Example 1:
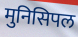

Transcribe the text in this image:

मुनिसिपल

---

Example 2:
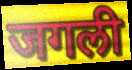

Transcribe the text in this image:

जगली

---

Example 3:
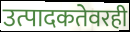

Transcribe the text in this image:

उत्पादकतेवरही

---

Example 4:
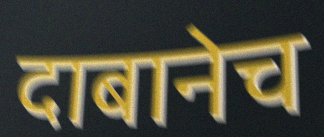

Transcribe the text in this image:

दाबानेच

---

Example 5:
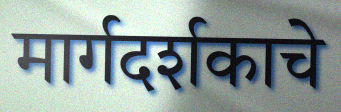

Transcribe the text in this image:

मार्गदर्शकाचे